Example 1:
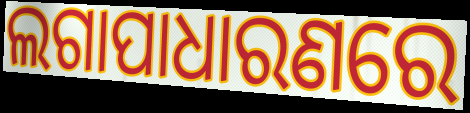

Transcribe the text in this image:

ଲଗାପାଧାରଣରେ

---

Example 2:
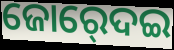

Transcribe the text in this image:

ଜୋର୍‍ଦେଇ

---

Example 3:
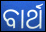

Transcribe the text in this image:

ବାର୍ଥ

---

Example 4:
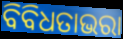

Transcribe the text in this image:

ବିବିଧତାଭରା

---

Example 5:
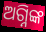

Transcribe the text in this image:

ଅଗ୍ନିଙ୍କ